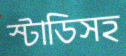
স্টাডিসহ